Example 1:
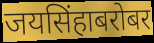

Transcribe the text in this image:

जयसिंहाबरोबर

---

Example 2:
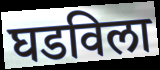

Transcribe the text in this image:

घडविला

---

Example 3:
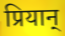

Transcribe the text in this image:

प्रियान्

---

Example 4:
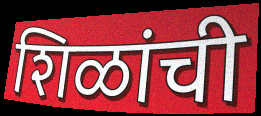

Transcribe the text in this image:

शिळांची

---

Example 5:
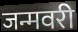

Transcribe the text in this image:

जन्मवरी